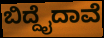
ಬಿದ್ದೈದಾವೆ